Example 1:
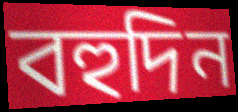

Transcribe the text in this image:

বহুদিন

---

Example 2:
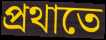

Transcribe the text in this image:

প্ৰথাতে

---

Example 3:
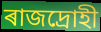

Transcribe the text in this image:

ৰাজদ্ৰোহী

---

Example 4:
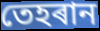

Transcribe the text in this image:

তেহৰান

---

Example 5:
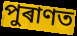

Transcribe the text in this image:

পুৰাণত